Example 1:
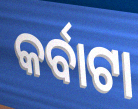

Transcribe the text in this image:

କର୍ବାଟା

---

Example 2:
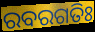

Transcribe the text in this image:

ରବରଗତିଃ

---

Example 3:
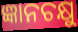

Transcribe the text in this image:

ଜ୍ଞାନଚକ୍ଷୁ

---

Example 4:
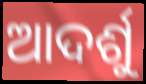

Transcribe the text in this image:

ଆଦର୍ଶୁ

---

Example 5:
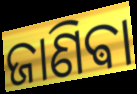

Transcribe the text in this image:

ଜାଣିଵା